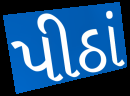
પીઠાં